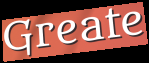
Greate